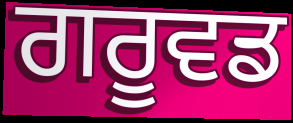
ਗਰੂਵਡ